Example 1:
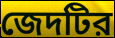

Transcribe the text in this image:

জেদটির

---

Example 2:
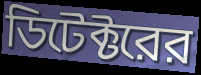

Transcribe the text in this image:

ডিটেক্টরের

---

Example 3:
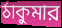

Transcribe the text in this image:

ঠাকুমার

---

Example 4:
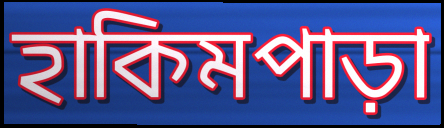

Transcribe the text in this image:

হাকিমপাড়া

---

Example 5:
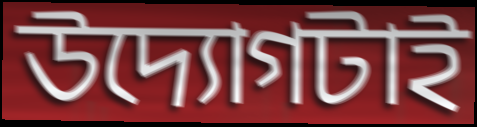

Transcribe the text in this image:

উদ্যোগটাই